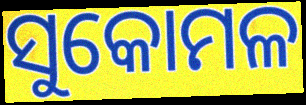
ସୁକୋମଳ